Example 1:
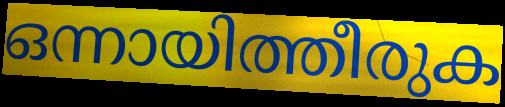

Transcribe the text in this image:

ഒന്നായിത്തീരുക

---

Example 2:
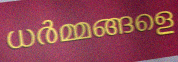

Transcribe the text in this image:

ധർമ്മങ്ങളെ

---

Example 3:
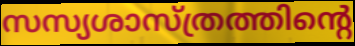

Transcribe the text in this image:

സസ്യശാസ്ത്രത്തിന്റെ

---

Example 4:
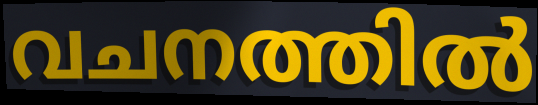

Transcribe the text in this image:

വചനത്തിൽ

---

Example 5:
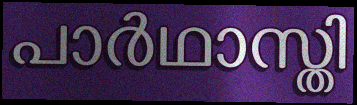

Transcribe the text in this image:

പാർഥാസ്തി